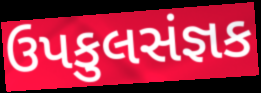
ઉપકુલસંજ્ઞક